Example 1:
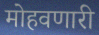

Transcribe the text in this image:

मोहवणारी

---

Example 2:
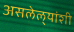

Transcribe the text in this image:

असलेल्यांशी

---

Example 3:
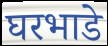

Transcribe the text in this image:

घरभाडे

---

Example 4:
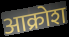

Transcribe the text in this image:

आक्रोश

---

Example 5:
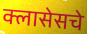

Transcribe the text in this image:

क्लासेसचे